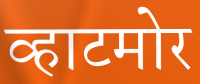
व्हाटमोर